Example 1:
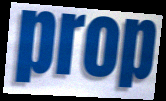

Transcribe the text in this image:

prop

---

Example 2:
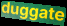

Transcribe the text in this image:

duggate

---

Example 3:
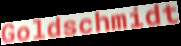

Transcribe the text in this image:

Goldschmidt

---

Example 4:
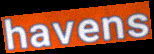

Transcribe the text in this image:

havens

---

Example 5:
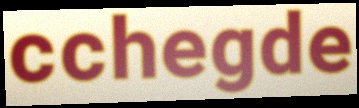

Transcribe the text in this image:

cchegde